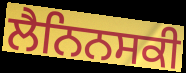
ਲੈਨਿਨਸਕੀ